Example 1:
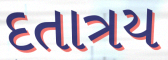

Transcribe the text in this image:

દતાત્રય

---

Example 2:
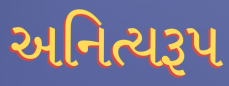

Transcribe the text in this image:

અનિત્યરૂપ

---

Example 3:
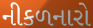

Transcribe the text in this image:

નીકળનારો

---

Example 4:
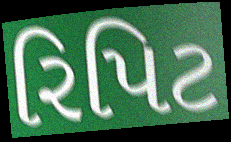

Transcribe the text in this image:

રિપિટ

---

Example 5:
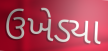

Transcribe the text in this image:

ઉખેડ્યા